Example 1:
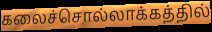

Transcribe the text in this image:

கலைச்சொல்லாக்கத்தில்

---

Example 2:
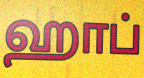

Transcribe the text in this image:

ஹாப்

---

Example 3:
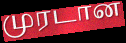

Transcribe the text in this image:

முரடான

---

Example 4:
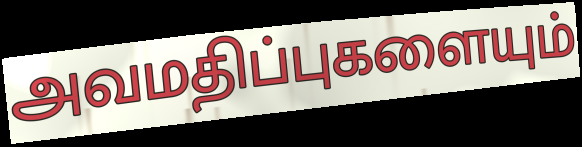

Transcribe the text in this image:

அவமதிப்புகளையும்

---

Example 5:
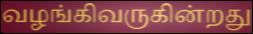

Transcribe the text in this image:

வழங்கிவருகின்றது